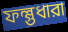
ফল্গুধারা